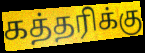
கத்தரிக்கு